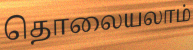
தொலையலாம்